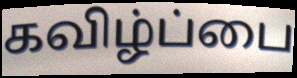
கவிழ்ப்பை